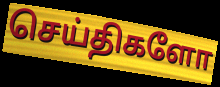
செய்திகளோ